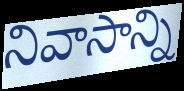
నివాసాన్ని